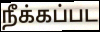
நீக்கப்பட